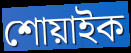
শোয়াইক